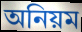
অনিয়ম